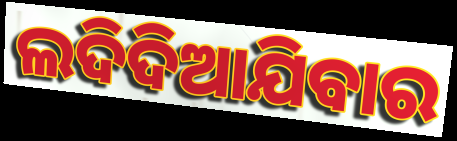
ଲଦିଦିଆଯିବାର